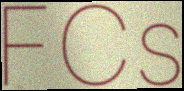
FCs